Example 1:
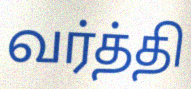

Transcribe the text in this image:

வர்த்தி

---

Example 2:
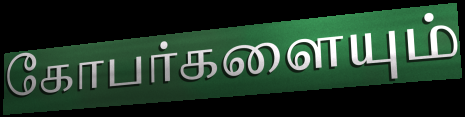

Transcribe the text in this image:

கோபர்களையும்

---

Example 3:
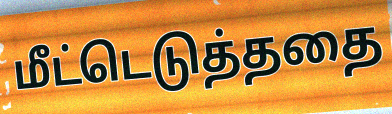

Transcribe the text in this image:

மீட்டெடுத்ததை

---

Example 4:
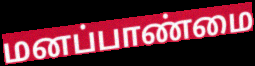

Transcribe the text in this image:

மனப்பாண்மை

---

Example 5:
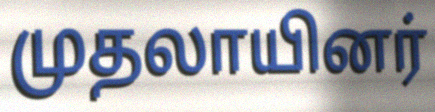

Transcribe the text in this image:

முதலாயினர்